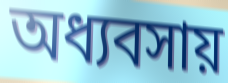
অধ্যবসায়